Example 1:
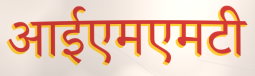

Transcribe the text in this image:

आईएमएमटी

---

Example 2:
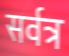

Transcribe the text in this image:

सर्वत्र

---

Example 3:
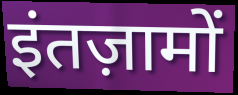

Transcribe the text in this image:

इंतज़ामों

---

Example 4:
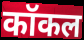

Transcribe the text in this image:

कॉकल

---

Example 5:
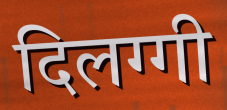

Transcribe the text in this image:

दिलग्गी